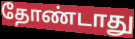
தோண்டாது